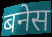
बनेस